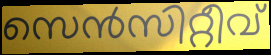
സെൻസിറ്റീവ്